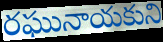
రఘునాయకుని